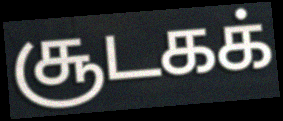
சூடகக்